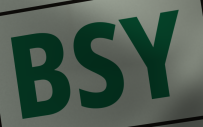
BSY